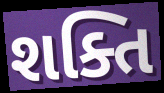
શક્તિ